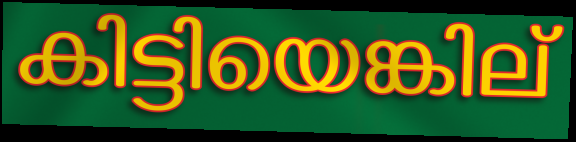
കിട്ടിയെങ്കില്